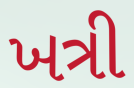
ખત્રી